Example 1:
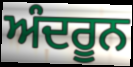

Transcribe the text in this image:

ਅੰਦਰੂਨ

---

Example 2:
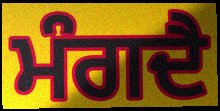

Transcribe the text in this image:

ਮੰਗਦੈ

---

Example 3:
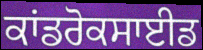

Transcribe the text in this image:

ਕਾਂਡਰੋਕਸਾਈਡ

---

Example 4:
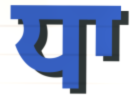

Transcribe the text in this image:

ਧਾ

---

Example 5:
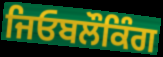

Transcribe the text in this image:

ਜਿਓਬਲੌਕਿੰਗ